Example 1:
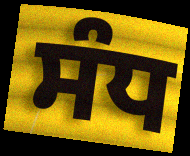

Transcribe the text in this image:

ਸੰਧ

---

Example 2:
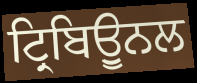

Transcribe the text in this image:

ਟ੍ਰਿਬਿਊੁਨਲ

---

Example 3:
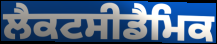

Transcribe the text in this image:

ਲੈਕਟਸੀਡੈਮਿਕ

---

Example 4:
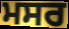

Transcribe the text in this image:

ਮਸਰ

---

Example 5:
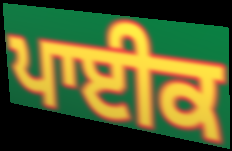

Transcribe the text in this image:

ਪਾਈਕ